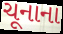
ચૂનાના